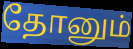
தோனும்